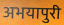
अभयापुरी